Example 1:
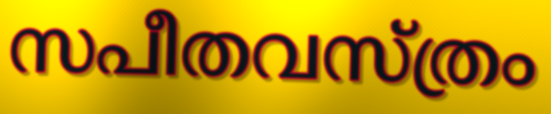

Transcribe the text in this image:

സപീതവസ്ത്രം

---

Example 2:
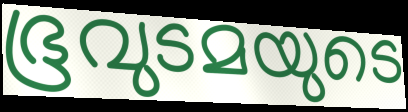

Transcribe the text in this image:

ഭൂവുടമയുടെ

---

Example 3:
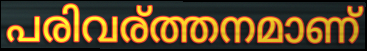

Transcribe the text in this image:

പരിവര്ത്തനമാണ്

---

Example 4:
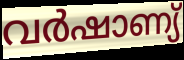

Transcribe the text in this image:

വർഷാണ്യ്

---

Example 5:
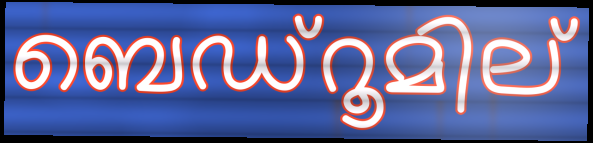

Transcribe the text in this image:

ബെഡ്റൂമില്